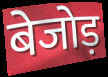
बेजोड़